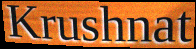
Krushnat